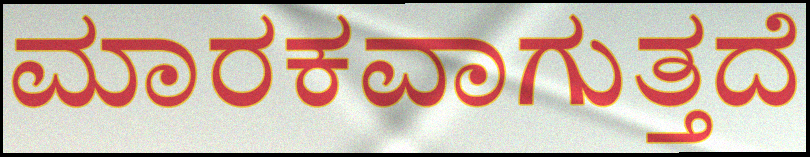
ಮಾರಕವಾಗುತ್ತದೆ